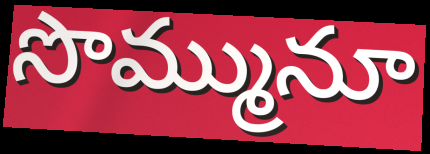
సొమ్మునూ